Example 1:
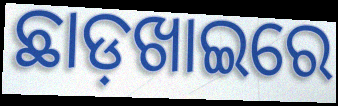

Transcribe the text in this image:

ଛାଡ଼ଖାଇରେ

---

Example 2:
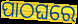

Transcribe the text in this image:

ପାଠଘରେ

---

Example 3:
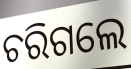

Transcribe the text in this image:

ଚରିଗଲେ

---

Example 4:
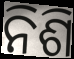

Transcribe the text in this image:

ନିଶି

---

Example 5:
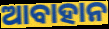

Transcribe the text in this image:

ଆବାହାନ